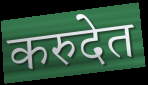
करुदेत